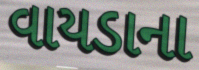
વાયડાના